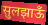
सुलझाऊँ